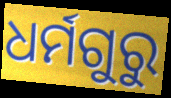
ଧର୍ମଗୁରୁ